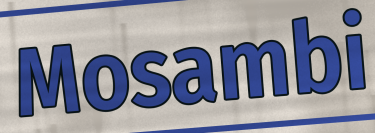
Mosambi